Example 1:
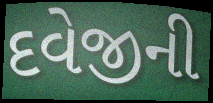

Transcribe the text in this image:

દવેજીની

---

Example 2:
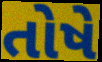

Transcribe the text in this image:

તોષે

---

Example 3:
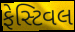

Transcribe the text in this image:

ફેસ્ટિવલ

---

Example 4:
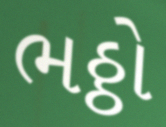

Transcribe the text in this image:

ભઠ્ઠો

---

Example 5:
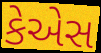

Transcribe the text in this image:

કેએસ